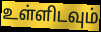
உள்ளிடவும்